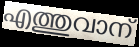
എത്തുവാന്